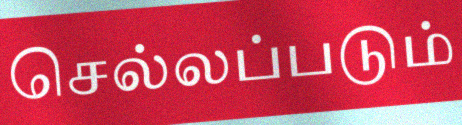
செல்லப்படும்